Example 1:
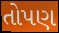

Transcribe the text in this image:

તોપણ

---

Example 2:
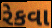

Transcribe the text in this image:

રેકવા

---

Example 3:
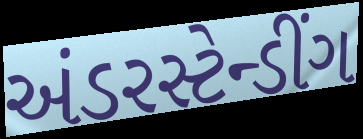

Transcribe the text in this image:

અંડરસ્ટેન્ડીંગ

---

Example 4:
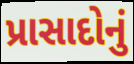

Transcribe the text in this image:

પ્રાસાદોનું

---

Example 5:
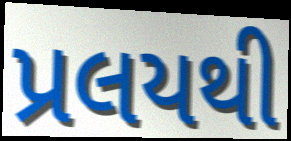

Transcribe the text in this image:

પ્રલયથી